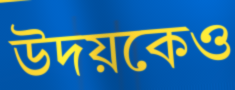
উদয়কেও